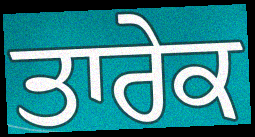
ਤਾਰੇਕ